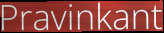
Pravinkant